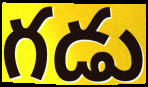
గడు